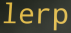
lerp